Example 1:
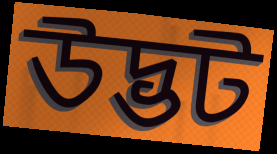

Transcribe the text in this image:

উদ্ভট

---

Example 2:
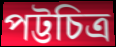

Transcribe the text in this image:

পট্টচিত্র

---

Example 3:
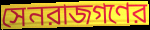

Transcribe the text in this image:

সেনরাজগণের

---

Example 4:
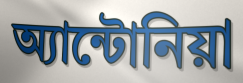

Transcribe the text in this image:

অ্যান্টোনিয়া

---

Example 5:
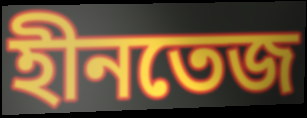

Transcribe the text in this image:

হীনতেজ